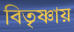
বিতৃষ্ণায়